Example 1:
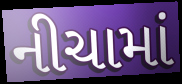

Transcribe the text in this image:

નીચામાં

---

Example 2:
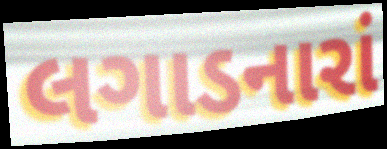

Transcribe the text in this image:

લગાડનારાં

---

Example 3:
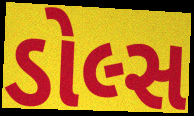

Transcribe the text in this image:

ડોલ્સ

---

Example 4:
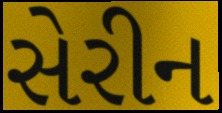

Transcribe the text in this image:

સેરીન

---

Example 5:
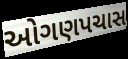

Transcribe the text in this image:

ઓગણપચાસ